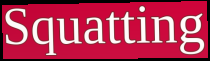
Squatting